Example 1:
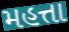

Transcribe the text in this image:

મહત્તા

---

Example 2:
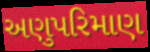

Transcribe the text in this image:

અણુપરિમાણ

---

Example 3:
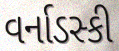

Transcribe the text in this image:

વર્નાડસ્કી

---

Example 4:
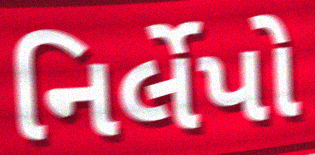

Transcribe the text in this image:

નિર્લેપો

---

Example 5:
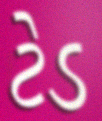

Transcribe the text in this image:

ટેડ